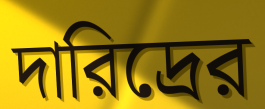
দারিদ্রের